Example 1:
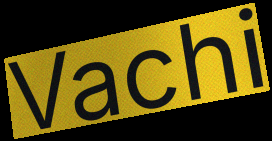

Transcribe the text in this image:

Vachi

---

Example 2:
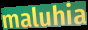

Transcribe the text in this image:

maluhia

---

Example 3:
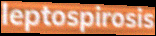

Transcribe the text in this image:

leptospirosis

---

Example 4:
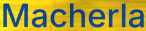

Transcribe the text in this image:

Macherla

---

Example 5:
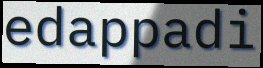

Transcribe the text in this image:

edappadi